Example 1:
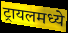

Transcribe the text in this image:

ट्रायलमध्ये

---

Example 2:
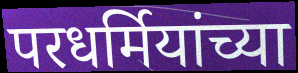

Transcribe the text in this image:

परधर्मियांच्या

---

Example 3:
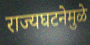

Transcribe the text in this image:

राज्यघटनेमुळे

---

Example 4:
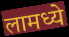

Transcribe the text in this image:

लामध्ये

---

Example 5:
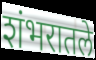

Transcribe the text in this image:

शंभरातले